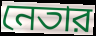
নেতার